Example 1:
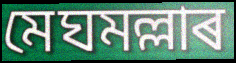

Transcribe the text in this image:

মেঘমল্লাৰ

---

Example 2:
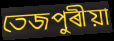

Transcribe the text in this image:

তেজপুৰীয়া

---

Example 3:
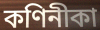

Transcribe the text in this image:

কণিনীকা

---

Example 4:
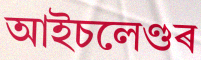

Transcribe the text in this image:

আইচলেণ্ডৰ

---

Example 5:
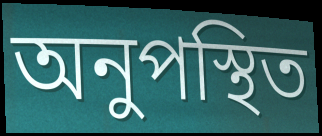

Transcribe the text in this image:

অনুপস্থিত